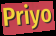
Priyo